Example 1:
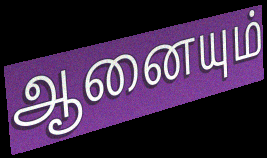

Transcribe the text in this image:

ஆனையும்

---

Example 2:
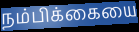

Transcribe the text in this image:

நம்பிக்கையை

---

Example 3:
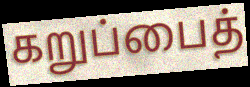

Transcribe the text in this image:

கறுப்பைத்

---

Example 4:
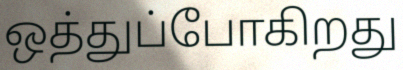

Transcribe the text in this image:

ஒத்துப்போகிறது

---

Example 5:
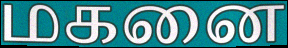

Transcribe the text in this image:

மகனை